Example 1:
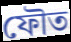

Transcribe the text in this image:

ফৌত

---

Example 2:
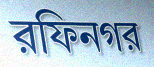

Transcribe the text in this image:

রফিনগর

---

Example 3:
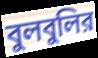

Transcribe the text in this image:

বুলবুলির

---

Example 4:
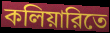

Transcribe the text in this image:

কলিয়ারিতে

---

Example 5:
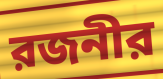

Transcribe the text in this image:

রজনীর